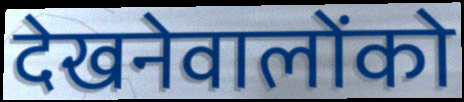
देखनेवालोंको